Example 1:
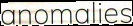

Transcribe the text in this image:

anomalies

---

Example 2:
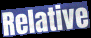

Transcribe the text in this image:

Relative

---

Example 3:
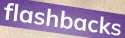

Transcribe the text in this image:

flashbacks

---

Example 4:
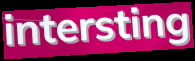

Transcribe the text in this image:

intersting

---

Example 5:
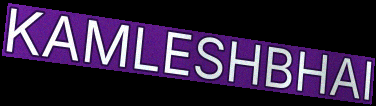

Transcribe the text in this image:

KAMLESHBHAI